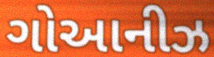
ગોઆનીઝ